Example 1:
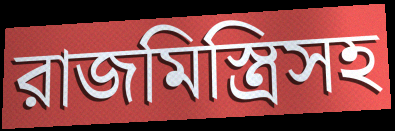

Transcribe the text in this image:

রাজমিস্ত্রিসহ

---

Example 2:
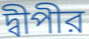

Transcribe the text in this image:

দ্বীপীর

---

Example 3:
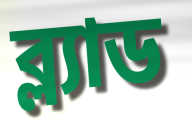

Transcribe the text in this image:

ব্ল্যাড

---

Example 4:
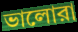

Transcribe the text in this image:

ভালোরা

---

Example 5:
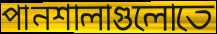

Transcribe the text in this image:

পানশালাগুলোতে